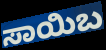
ಸಾಯಿಬ